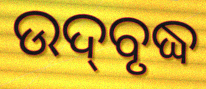
ଉଦ୍‌ବୃଦ୍ଧ